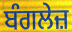
ਬੰਗਲੇਜ਼